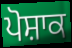
ਪੋਸ਼ਾਕ